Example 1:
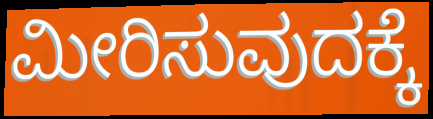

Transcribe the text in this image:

ಮೀರಿಸುವುದಕ್ಕೆ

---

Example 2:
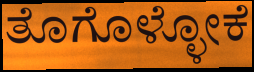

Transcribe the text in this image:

ತೊಗೊಳ್ಳೋಕೆ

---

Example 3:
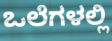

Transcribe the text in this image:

ಒಲೆಗಳಲ್ಲಿ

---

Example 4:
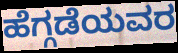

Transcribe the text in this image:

ಹೆಗ್ಗಡೆಯವರ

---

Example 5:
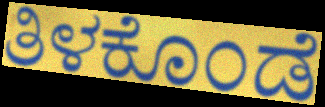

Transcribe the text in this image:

ತಿಳಕೊಂಡೆ